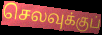
செலவுக்குப்